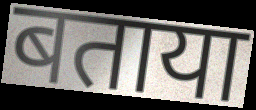
बताया